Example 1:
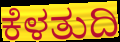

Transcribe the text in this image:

ಕೆಳತುದಿ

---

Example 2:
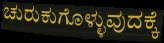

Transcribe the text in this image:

ಚುರುಕುಗೊಳ್ಳುವುದಕ್ಕೆ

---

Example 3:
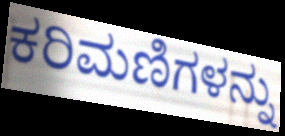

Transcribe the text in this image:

ಕರಿಮಣಿಗಳನ್ನು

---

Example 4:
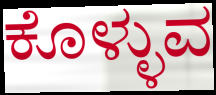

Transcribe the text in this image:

ಕೊಳ್ಳುವ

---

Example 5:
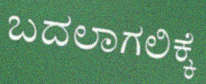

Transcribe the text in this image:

ಬದಲಾಗಲಿಕ್ಕೆ